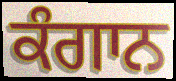
ਕੰਗਾਨ